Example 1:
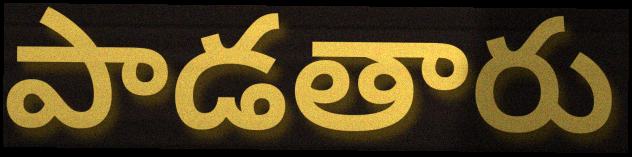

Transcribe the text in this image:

పాడతారు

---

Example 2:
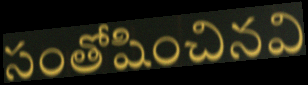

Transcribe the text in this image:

సంతోషించినవి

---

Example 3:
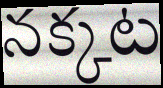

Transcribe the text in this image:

నక్కట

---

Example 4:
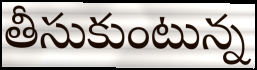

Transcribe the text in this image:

తీసుకుంటున్న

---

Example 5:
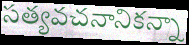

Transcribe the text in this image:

సత్యవచనానికన్నా